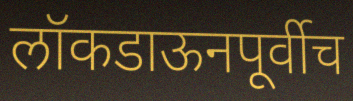
लॉकडाऊनपूर्वीच